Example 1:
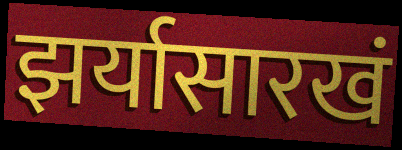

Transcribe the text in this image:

झर्यासारखं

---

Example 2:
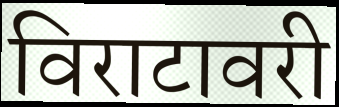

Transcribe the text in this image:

विराटावरी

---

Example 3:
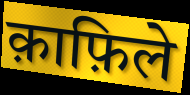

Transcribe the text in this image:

क़ाफ़िले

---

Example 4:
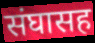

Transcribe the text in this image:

संघासह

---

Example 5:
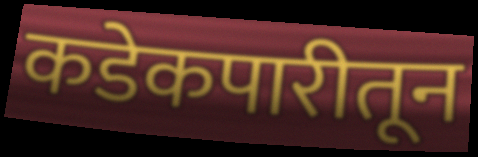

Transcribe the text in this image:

कडेकपारीतून